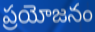
ప్రయోజనం